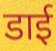
डाई